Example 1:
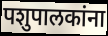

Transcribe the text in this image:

पशुपालकांना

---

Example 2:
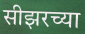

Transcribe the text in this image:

सीझरच्या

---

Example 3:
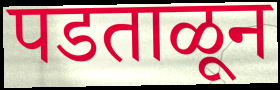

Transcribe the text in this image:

पडताळून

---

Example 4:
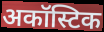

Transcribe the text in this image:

अकॉस्टिक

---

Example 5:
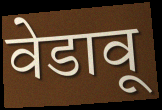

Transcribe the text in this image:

वेडावू